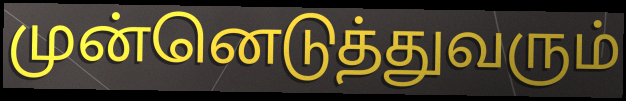
முன்னெடுத்துவரும்